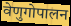
वेणुगोपालन